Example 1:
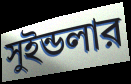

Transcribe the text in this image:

সুইন্ডলার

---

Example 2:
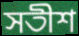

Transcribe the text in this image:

সতীশ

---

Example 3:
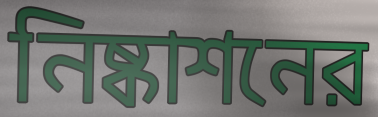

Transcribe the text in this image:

নিষ্কাশনের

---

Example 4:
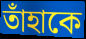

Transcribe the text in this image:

তাঁহাকে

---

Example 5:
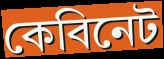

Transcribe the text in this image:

কেবিনেট